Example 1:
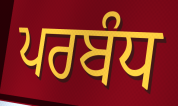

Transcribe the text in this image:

ਪਰਬੰਧ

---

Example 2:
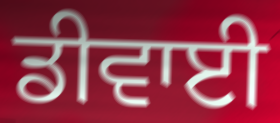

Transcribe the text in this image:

ਡੀਵਾਈ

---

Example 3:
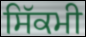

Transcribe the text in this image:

ਸਿੱਕਮੀ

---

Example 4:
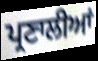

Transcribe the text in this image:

ਪ੍ਰਣਾਲੀਆਂ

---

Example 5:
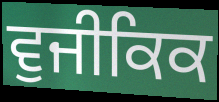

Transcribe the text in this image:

ਵੁਜੀਕਿਕ